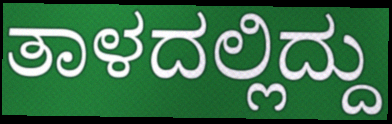
ತಾಳದಲ್ಲಿದ್ದು